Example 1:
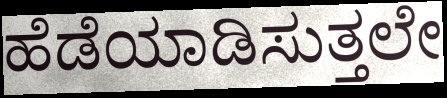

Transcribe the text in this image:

ಹೆಡೆಯಾಡಿಸುತ್ತಲೇ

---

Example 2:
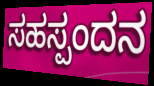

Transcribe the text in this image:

ಸಹಸ್ಪಂದನ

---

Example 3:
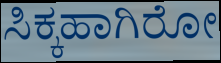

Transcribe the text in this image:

ಸಿಕ್ಕಹಾಗಿರೋ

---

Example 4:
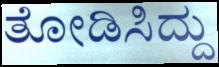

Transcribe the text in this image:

ತೋಡಿಸಿದ್ದು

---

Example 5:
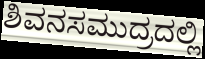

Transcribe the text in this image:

ಶಿವನಸಮುದ್ರದಲ್ಲಿ